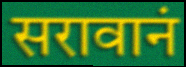
सरावानं